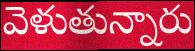
వెళుతున్నారు